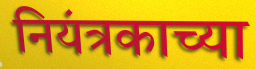
नियंत्रकाच्या